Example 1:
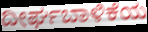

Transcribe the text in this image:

ದೀರ್ಘಬಾಳಿಕೆಯ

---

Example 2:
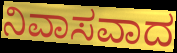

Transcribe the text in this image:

ನಿವಾಸವಾದ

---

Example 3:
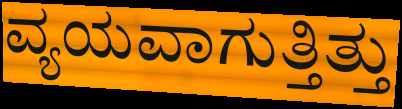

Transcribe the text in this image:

ವ್ಯಯವಾಗುತ್ತಿತ್ತು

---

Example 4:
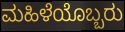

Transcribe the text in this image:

ಮಹಿಳೆಯೊಬ್ಬರು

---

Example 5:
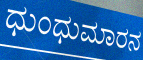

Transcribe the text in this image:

ಧುಂಧುಮಾರನ